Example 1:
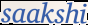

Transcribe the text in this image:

saakshi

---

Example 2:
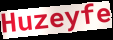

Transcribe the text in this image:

Huzeyfe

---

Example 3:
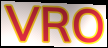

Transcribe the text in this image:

VRO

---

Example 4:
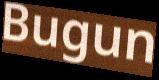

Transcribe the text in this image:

Bugun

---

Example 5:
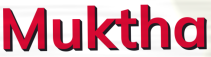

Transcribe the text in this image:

Muktha